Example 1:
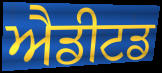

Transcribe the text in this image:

ਐਡੀਟਡ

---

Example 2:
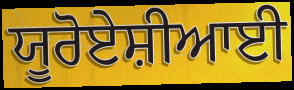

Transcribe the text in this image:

ਯੂਰੋਏਸ਼ੀਆਈ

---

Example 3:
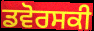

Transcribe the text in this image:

ਡਵੋਰਸਕੀ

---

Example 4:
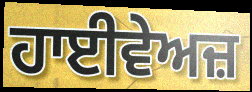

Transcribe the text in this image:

ਹਾਈਵੇਅਜ਼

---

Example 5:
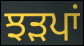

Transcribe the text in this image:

ਝੜਪਾਂ